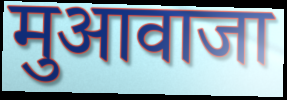
मुआवाजा